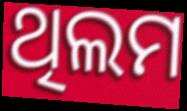
ଥିଲମ